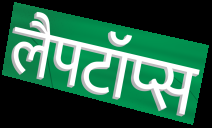
लैपटॉप्‍स